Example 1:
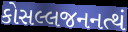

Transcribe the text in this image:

કોસલ્લજનનત્થં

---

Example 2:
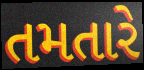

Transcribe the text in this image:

તમતારે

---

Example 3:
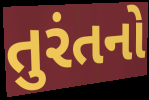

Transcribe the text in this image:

તુરંતનો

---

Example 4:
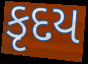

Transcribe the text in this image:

કૃદય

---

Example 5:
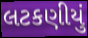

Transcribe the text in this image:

લટકણીયું